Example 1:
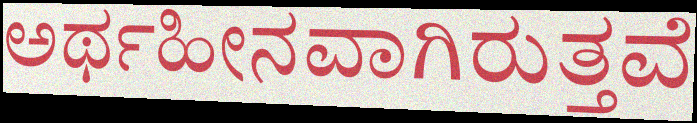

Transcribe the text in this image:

ಅರ್ಥಹೀನವಾಗಿರುತ್ತವೆ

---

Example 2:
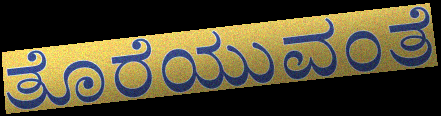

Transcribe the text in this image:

ತೊರೆಯುವಂತೆ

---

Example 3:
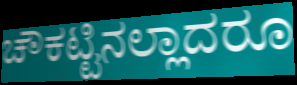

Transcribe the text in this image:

ಚೌಕಟ್ಟಿನಲ್ಲಾದರೂ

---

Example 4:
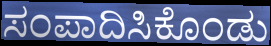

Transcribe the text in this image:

ಸಂಪಾದಿಸಿಕೊಂಡು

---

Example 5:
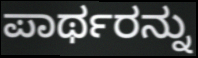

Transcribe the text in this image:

ಪಾರ್ಥರನ್ನು